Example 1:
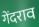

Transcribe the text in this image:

गेंदराव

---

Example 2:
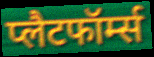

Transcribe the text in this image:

प्लैटफॉर्म्स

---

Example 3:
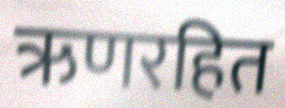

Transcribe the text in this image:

ऋणरहित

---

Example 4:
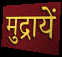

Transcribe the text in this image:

मुद्रायें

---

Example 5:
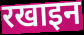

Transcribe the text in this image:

रखाइन